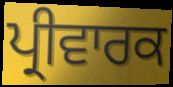
ਪ੍ਰੀਵਾਰਕ